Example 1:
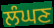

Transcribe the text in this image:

ਲੰਘਣ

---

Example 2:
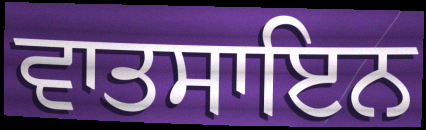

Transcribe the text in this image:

ਵਾਤਸਾਇਨ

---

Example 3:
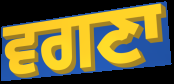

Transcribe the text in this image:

ਵਗਣਾ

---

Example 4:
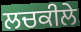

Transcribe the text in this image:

ਲਚਕੀਲੇ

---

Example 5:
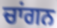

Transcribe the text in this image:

ਚਾਂਗਨ